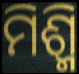
ମିଶ୍ମି